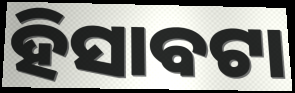
ହିସାବଟା